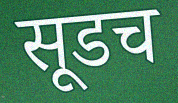
सूडच